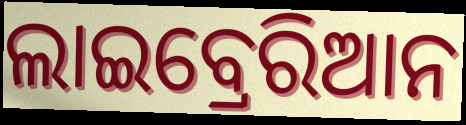
ଲାଇବ୍ରେରିଆନ